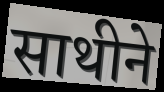
साथीने